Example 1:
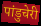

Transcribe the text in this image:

पांडुचेरी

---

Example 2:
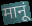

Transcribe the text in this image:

मानूं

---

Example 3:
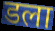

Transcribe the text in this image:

डला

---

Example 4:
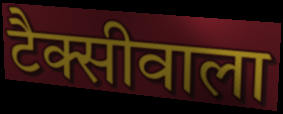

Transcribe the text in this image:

टैक्सीवाला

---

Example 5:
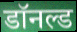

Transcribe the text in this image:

डॉनल्ड